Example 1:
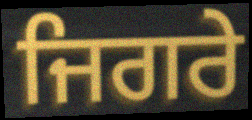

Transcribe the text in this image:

ਜਿਗਰੇ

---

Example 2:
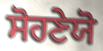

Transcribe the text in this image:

ਸੋਹਣੇਯੋ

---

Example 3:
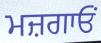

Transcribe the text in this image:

ਮਜ਼ਗਾਓਂ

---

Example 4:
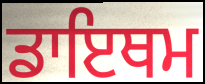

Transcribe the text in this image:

ਡਾਇਥਮ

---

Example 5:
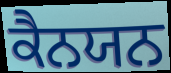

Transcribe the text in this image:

ਕੈਨਯਨ